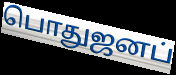
பொதுஜனப்